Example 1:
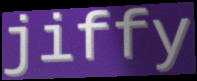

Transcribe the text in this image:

jiffy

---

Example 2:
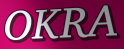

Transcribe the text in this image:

OKRA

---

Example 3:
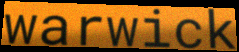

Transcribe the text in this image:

warwick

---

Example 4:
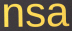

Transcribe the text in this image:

nsa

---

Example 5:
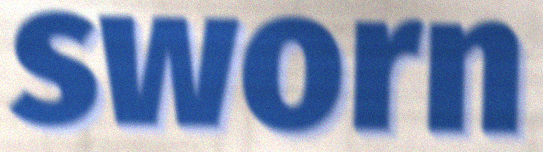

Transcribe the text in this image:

sworn